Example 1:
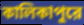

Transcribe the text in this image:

কালিকাপুরে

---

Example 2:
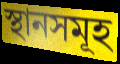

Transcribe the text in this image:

স্থানসমূহ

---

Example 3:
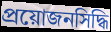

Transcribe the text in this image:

প্রয়োজনসিদ্ধি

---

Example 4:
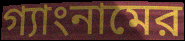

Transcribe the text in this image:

গ্যাংনামের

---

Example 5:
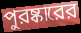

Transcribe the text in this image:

পুরষ্কারের